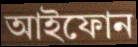
আইফোন